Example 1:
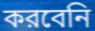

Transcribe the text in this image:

করবেনি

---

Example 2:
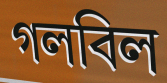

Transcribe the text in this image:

গলবিল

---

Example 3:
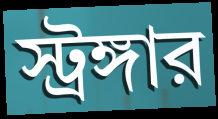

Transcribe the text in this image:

স্ট্রঙ্গার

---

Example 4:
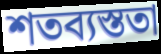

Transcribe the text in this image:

শতব্যস্ততা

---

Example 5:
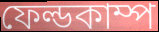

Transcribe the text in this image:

ফেল্ডকাম্প